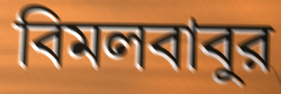
বিমলবাবুর